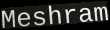
Meshram